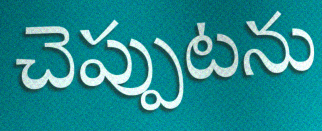
చెప్పుటను